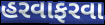
હરવાફરવા